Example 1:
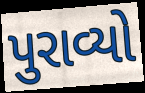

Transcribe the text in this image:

પુરાવ્યો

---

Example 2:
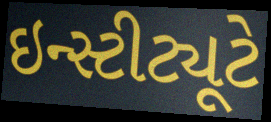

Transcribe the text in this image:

ઇન્સ્ટીટ્યૂટે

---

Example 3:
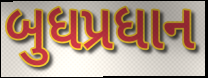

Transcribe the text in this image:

બુધપ્રધાન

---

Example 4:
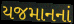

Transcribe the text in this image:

યજમાનનાં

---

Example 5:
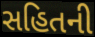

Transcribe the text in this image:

સહિતની